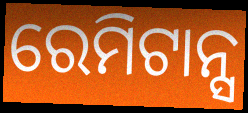
ରେମିଟାନ୍ସ